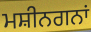
ਮਸ਼ੀਨਗਨਾਂ